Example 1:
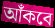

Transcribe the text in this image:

আঁকবে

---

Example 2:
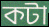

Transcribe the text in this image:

কটা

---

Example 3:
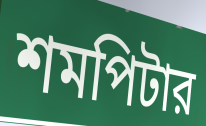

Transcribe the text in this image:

শমপিটার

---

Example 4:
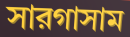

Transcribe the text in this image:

সারগাসাম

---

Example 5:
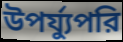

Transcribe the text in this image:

উপর্য্যুপরি